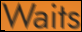
Waits